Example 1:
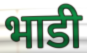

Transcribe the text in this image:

भाडी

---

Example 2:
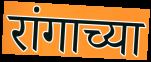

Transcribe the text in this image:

रांगाच्या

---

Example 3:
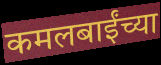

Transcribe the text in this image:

कमलबाईंच्या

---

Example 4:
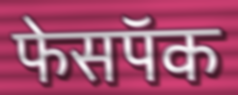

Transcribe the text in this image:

फेसपॅक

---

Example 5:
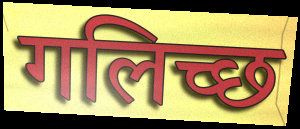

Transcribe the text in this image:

गलिच्छ